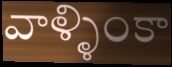
వాళ్ళింకా